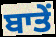
ਬਾਤੇਂ